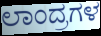
ಲಾಂದ್ರಗಳ